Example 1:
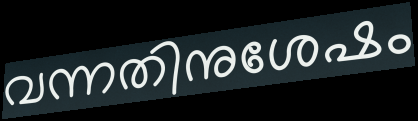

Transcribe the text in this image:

വന്നതിനുശേഷം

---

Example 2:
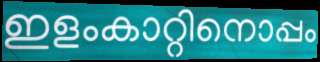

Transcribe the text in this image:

ഇളംകാറ്റിനൊപ്പം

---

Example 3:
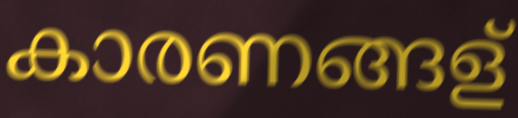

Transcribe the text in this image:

കാരണങ്ങള്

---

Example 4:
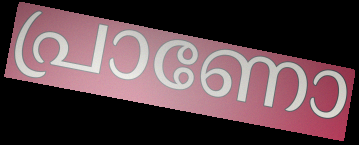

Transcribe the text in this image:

പ്രാണോ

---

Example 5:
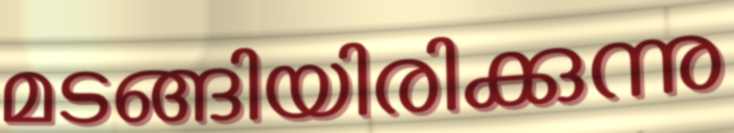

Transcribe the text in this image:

മടങ്ങിയിരിക്കുന്നു